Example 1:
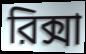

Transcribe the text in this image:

রিক্সা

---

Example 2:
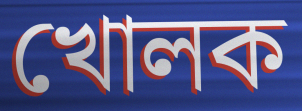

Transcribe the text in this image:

খোলক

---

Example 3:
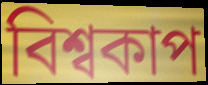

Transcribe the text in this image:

বিশ্বকাপ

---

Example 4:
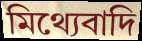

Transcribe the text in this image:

মিথ্যেবাদি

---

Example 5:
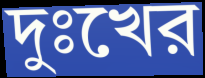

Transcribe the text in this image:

দুঃখের